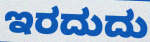
ಇರದುದು